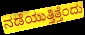
ನಡೆಯುತ್ತಿತ್ತೆಂದು